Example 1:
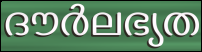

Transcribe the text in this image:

ദൗർലഭ്യത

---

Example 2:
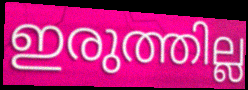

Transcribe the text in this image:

ഇരുത്തില്ല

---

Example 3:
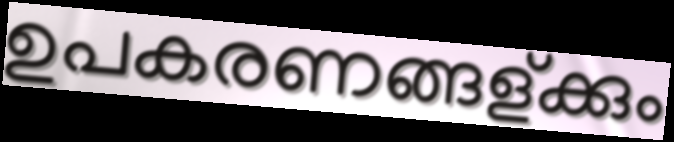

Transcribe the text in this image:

ഉപകരണങ്ങള്ക്കും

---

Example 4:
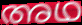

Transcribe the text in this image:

അഥ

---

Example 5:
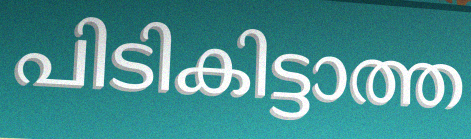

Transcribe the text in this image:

പിടികിട്ടാത്ത